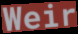
Weir